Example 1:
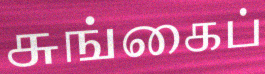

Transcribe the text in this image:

சுங்கைப்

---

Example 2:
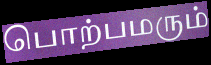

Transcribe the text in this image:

பொற்பமரும்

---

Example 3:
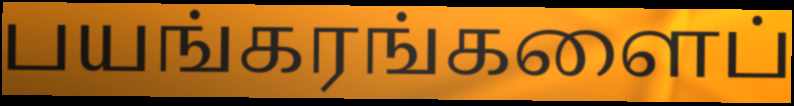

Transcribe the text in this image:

பயங்கரங்களைப்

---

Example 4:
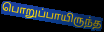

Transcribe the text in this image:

பொறுப்பாயிருந்த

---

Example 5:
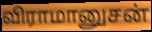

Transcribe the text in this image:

விராமானுசன்